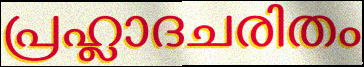
പ്രഹ്ലാദചരിതം